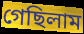
গেছিলাম